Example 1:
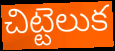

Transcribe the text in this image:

చిట్టెలుక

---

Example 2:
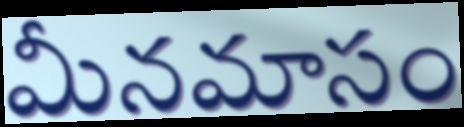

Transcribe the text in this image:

మీనమాసం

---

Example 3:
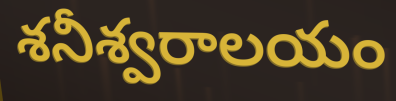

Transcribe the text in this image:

శనీశ్వరాలయం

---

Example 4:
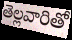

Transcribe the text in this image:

తెల్లవారితో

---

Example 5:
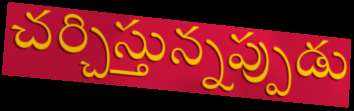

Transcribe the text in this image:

చర్చిస్తున్నప్పుడు